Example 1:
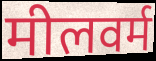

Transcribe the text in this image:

मीलवर्म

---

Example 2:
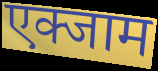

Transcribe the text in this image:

एक्जाम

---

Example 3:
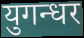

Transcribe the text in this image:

युगन्धर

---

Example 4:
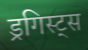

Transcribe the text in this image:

ड्रगिस्ट्स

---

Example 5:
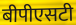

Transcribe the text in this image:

बीपीएसटी